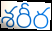
శరీర